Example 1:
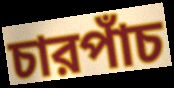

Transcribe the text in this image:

চারপাঁচ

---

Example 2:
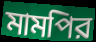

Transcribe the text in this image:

মামপির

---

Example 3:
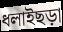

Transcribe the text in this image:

ধলাইছড়া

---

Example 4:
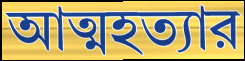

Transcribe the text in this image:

আত্মহত্যার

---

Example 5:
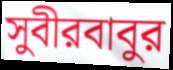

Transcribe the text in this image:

সুবীরবাবুর